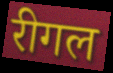
रीगल